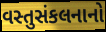
વસ્તુસંકલનાનો